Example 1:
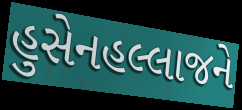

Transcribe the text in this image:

હુસેનહલ્લાજને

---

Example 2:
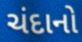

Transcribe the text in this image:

ચંદાનો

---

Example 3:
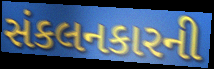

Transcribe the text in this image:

સંકલનકારની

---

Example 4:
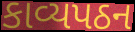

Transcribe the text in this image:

કાવ્યપઠન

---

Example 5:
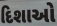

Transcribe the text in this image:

દિશાઓ